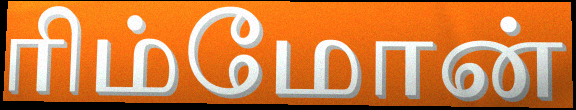
ரிம்மோன்